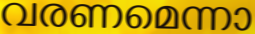
വരണമെന്നാ